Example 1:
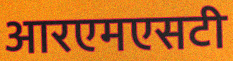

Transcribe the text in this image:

आरएमएसटी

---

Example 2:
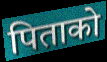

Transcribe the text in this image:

पिताको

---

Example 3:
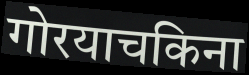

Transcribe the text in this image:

गोरयाचकिना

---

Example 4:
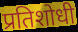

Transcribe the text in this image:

प्रतिशोधी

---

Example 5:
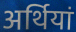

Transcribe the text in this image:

अर्थियां